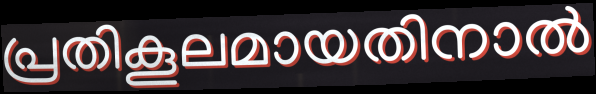
പ്രതികൂലമായതിനാൽ